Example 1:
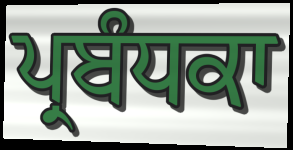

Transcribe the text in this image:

ਪ੍ਰਬੰਧਕਾ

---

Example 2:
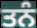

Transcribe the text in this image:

ਤਨੰ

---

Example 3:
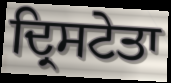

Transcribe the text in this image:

ਦ੍ਰਿਸਟੇਤਾ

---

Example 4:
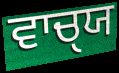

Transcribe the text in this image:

ਵਾਚੑਯ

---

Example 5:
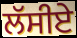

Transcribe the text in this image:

ਲੱਸੀਏ